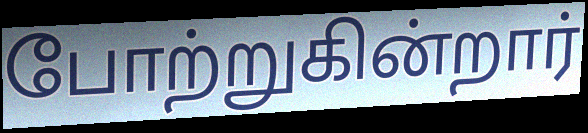
போற்றுகின்றார்